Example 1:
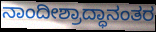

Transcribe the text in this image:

ನಾಂದೀಶ್ರಾದ್ಧಾನಂತರ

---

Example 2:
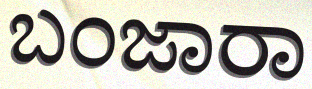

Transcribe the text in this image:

ಬಂಜಾರಾ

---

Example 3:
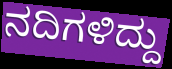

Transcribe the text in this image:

ನದಿಗಳಿದ್ದು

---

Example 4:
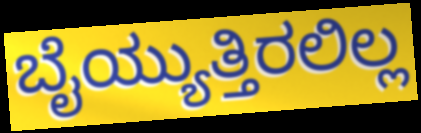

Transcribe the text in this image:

ಬೈಯ್ಯುತ್ತಿರಲಿಲ್ಲ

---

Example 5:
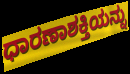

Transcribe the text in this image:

ಧಾರಣಾಶಕ್ತಿಯನ್ನು